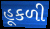
હૂકળી